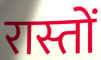
रास्‍तों